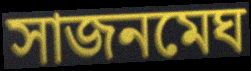
সাজনমেঘ